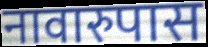
नावारुपास